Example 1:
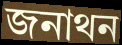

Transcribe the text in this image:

জনাথন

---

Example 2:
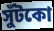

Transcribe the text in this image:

সুঁটকো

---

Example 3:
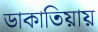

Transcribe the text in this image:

ডাকাতিয়ায়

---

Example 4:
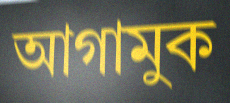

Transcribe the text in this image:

আগামুক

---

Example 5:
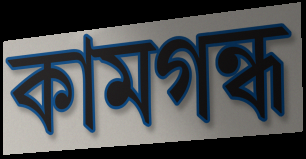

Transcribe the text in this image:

কামগন্ধ